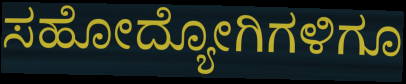
ಸಹೋದ್ಯೋಗಿಗಳಿಗೂ